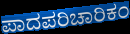
ಪಾದಪರಿಚಾರಿಕಂ